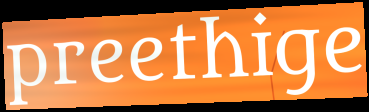
preethige